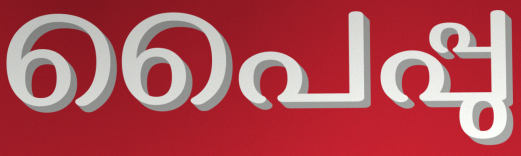
പൈപ്പു